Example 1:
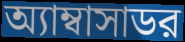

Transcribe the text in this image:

অ্যাম্বাসাডর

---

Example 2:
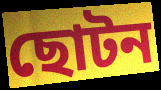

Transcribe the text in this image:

ছোটন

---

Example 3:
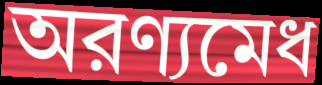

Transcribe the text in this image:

অরণ্যমেধ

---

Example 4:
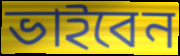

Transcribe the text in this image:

ভাইবেন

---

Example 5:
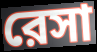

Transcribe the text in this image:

রেসা